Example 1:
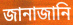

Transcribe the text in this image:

জানাজানি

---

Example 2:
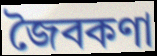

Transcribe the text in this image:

জৈবকণা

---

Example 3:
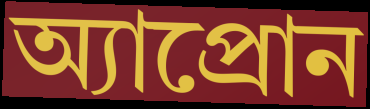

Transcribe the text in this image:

অ্যাপ্রোন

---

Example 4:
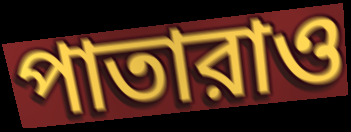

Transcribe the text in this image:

পাতারাও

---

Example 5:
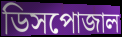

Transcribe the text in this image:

ডিসপোজাল